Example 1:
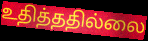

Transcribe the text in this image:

உதித்ததில்லை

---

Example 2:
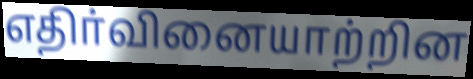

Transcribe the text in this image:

எதிர்வினையாற்றின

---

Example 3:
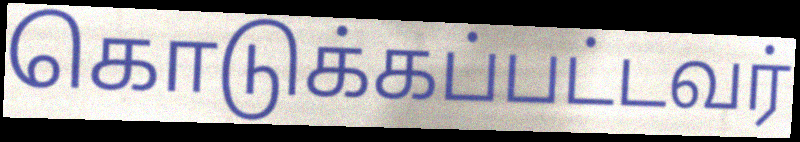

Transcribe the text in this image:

கொடுக்கப்பட்டவர்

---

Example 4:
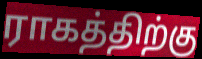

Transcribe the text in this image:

ராகத்திற்கு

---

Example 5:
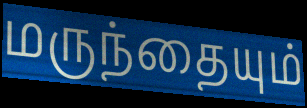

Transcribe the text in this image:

மருந்தையும்